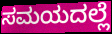
ಸಮಯದಲ್ಲೆ